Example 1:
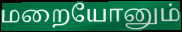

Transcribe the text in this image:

மறையோனும்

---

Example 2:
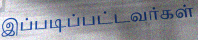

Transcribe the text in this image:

இப்படிப்பட்டவர்கள்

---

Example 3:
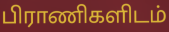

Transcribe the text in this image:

பிராணிகளிடம்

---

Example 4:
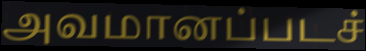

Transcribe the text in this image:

அவமானப்படச்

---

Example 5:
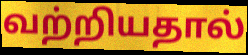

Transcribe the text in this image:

வற்றியதால்